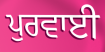
ਪੁਰਵਾਈ